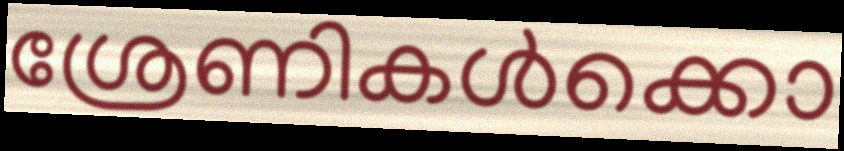
ശ്രേണികൾക്കൊ